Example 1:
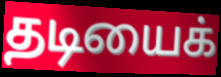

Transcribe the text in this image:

தடியைக்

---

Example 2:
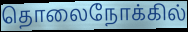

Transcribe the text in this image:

தொலைநோக்கில்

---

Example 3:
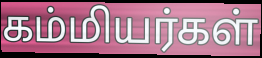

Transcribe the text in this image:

கம்மியர்கள்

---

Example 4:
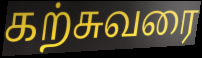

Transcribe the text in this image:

கற்சுவரை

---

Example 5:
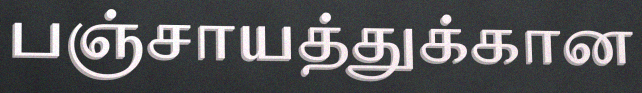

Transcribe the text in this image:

பஞ்சாயத்துக்கான